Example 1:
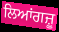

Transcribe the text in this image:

ਲਿਆਂਗਜ਼ੂ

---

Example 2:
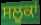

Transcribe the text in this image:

ਸਲੂਕਾਂ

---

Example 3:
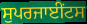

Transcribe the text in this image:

ਸੁਪਰਜਾਈਂਟਸ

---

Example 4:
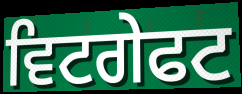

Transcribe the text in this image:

ਵਿਟਗੇਫਟ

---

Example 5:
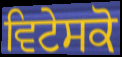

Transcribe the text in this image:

ਵਿਟੇਸਕੋ